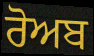
ਰੋਅਬ